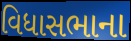
વિધાસભાના